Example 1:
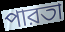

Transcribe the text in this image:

পারতা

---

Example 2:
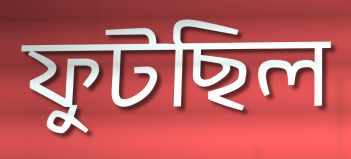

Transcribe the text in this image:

ফুটছিল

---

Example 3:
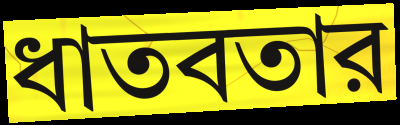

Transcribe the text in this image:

ধাতবতার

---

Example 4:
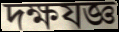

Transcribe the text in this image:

দক্ষযজ্ঞ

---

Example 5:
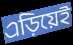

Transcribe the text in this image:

এড়িয়েই